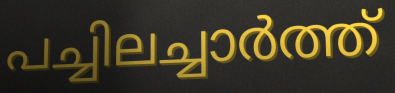
പച്ചിലച്ചാർത്ത്